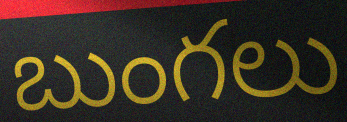
బుంగలు